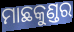
ମାଛକୁଣ୍ଡର